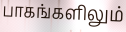
பாகங்களிலும்